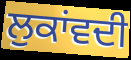
ਲੁਕਾਂਵਦੀ